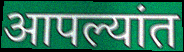
आपल्यांत